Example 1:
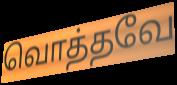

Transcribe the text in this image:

வொத்தவே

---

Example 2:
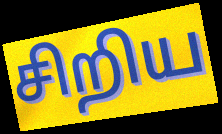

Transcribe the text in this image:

சிறிய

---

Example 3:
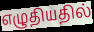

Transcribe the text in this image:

எழுதியதில்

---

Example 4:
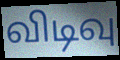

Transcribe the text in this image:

விடிவு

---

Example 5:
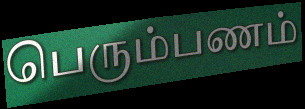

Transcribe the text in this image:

பெரும்பணம்